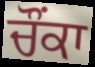
ਚੌਂਕਾ